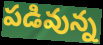
పడివున్న